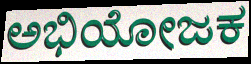
ಅಭಿಯೋಜಕ